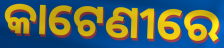
କାଟେଣୀରେ